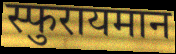
स्फुरायमान